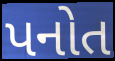
પનોત